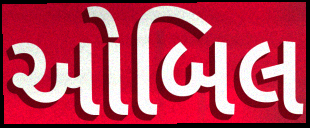
ઓબિલ